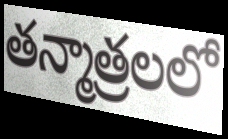
తన్మాత్రలలో